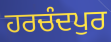
ਹਰਚੰਦਪੁਰ